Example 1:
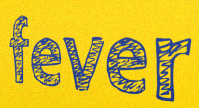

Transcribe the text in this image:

fever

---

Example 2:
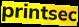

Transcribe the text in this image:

printsec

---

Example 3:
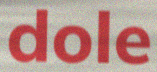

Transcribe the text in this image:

dole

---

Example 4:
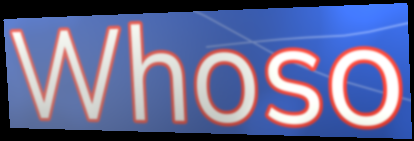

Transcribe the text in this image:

Whoso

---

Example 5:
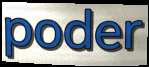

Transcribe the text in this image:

poder